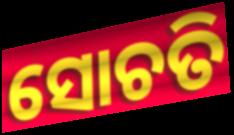
ସୋଚତି